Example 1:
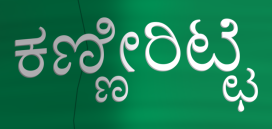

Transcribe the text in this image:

ಕಣ್ಣೀರಿಟ್ಟೆ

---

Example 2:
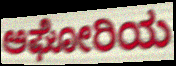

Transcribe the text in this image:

ಅಘೋರಿಯ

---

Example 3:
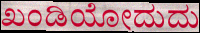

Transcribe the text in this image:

ಖಂಡಿಯೋದುದು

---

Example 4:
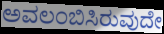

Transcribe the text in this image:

ಅವಲಂಬಿಸಿರುವುದೇ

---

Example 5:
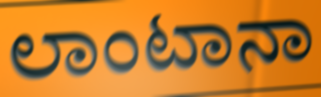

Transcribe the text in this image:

ಲಾಂಟಾನಾ